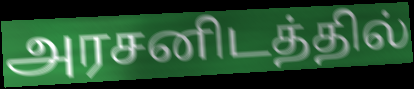
அரசனிடத்தில்